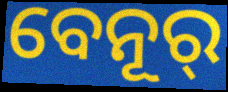
ବେନୂର୍